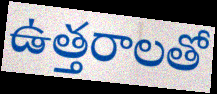
ఉత్తరాలతో